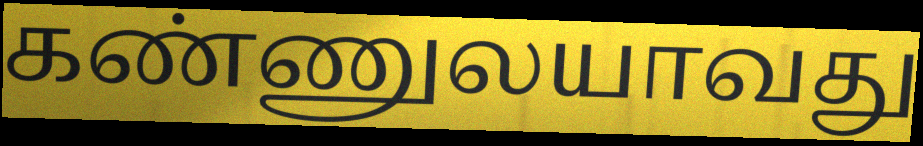
கண்ணுலயாவது